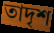
তাদৃশ